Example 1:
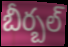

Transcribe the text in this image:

బీర్బల్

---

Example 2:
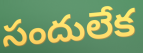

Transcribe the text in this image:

సందులేక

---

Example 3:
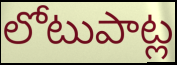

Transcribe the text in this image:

లోటుపాట్ల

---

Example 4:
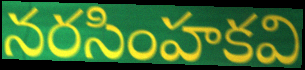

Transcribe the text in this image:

నరసింహకవి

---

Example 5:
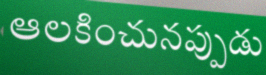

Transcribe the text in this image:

ఆలకించునప్పుడు